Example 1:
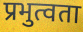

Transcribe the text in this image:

प्रभुत्वता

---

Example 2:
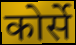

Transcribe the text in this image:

कोर्से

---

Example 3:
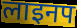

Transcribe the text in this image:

लाइनप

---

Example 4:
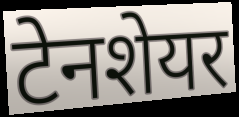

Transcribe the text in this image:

टेनशेयर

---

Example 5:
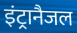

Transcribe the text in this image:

इंट्रानैजल